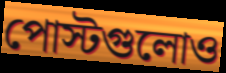
পোস্টগুলোও